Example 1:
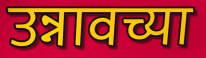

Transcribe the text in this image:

उन्नावच्या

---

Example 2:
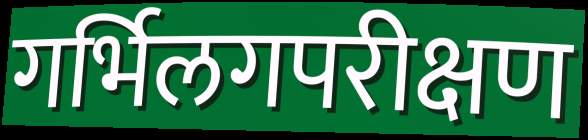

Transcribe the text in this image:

गर्भिलगपरीक्षण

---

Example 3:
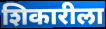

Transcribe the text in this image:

शिकारीला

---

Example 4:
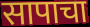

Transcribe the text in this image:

सापाचा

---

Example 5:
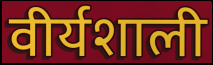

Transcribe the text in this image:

वीर्यशाली